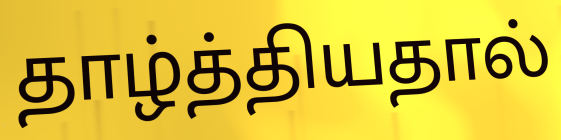
தாழ்த்தியதால்